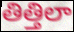
తిత్తిలా